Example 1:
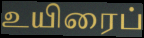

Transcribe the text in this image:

உயிரைப்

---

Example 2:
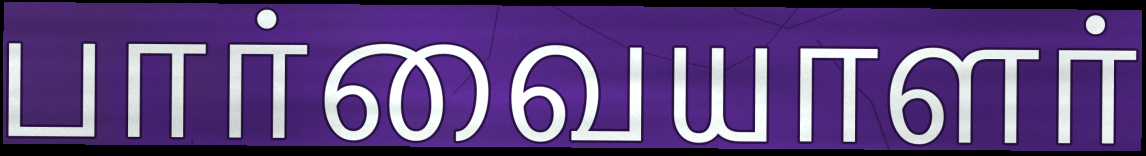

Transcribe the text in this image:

பார்வையாளர்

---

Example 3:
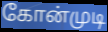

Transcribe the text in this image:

கோன்முடி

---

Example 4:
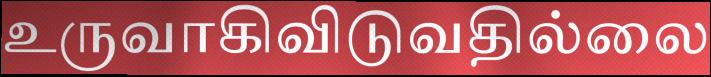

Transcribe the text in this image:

உருவாகிவிடுவதில்லை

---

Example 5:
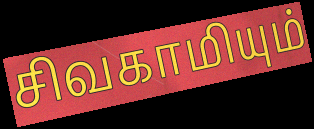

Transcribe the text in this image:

சிவகாமியும்